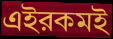
এইরকমই